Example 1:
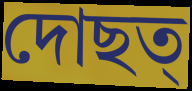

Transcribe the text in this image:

দোছত্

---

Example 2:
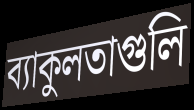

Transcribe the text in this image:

ব্যাকুলতাগুলি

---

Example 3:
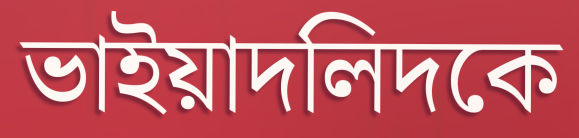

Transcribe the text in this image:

ভাইয়াদলিদকে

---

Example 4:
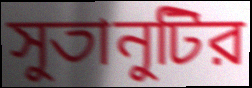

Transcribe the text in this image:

সুতানুটির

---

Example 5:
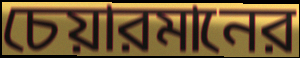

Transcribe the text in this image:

চেয়ারমানের